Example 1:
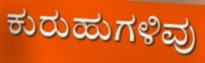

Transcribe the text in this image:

ಕುರುಹುಗಳಿವು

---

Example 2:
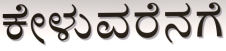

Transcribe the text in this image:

ಕೇಳುವರೆನಗೆ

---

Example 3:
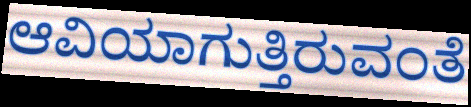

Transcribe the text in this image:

ಆವಿಯಾಗುತ್ತಿರುವಂತೆ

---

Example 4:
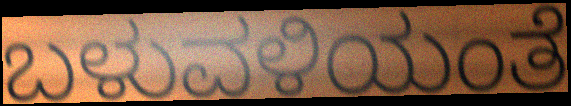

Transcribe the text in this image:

ಬಳುವಳಿಯಂತೆ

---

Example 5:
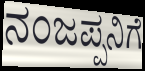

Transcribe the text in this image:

ನಂಜಪ್ಪನಿಗೆ